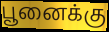
பூனைக்கு